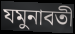
যমুনাবতী